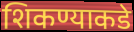
शिकण्याकडे